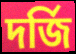
দর্জি